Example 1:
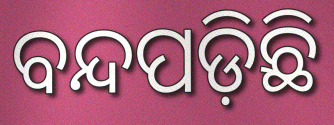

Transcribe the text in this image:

ବନ୍ଦପଡ଼ିଛି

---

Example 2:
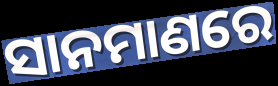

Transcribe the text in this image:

ସାନମାଣରେ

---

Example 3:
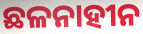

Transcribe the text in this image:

ଛଳନାହୀନ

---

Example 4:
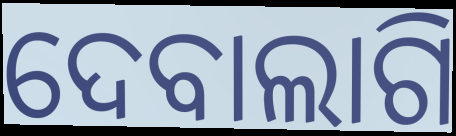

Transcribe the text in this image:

ଦେବାଲାଗି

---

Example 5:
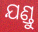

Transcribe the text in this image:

ଯଣ୍ଡୁ